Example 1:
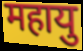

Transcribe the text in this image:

महायु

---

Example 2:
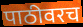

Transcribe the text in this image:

पाठीवरच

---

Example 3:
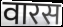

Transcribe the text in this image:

वारस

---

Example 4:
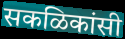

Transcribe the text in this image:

सकळिकांसी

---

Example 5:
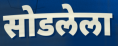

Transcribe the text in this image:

सोडलेला